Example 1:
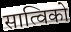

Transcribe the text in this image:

सात्विको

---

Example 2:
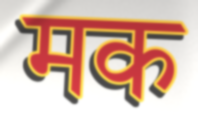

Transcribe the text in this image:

मक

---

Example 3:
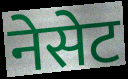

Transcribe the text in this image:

नेसेट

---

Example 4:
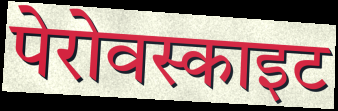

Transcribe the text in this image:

पेरोवस्काइट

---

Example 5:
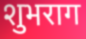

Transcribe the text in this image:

शुभराग